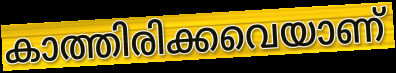
കാത്തിരിക്കവെയാണ്